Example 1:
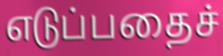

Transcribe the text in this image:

எடுப்பதைச்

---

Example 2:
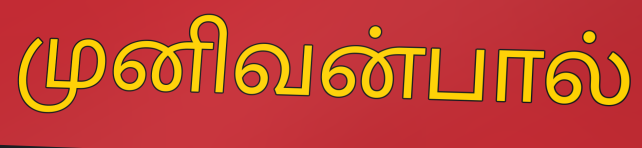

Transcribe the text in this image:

முனிவன்பால்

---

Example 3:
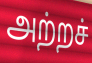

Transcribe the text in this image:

அற்றச்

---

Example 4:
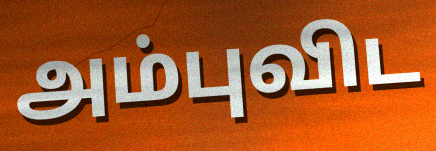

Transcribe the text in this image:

அம்புவிட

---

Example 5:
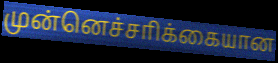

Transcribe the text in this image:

முன்னெச்சரிக்கையான